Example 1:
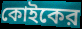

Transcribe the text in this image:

কোইকের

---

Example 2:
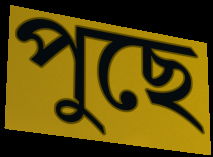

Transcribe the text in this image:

পুছে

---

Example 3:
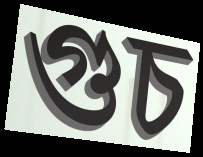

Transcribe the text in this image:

গুচ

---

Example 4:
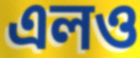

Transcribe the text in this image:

এলও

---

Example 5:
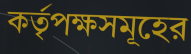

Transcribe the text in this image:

কর্তৃপক্ষসমূহের